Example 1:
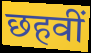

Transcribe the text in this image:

छहवीं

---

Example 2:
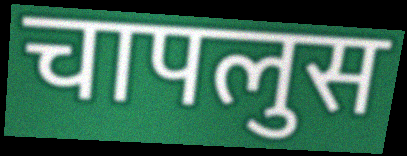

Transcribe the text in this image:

चापलुस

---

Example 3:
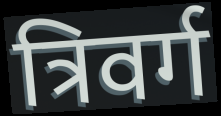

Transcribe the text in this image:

त्रिवर्ग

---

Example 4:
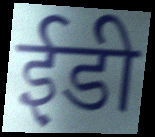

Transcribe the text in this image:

ई़डी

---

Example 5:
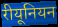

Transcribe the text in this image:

रीयूनियन